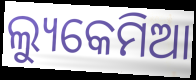
ଲ୍ୟୁକେମିଆ